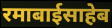
रमाबाईसाहेब